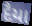
દૈયા